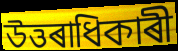
উত্তৰাধিকাৰী